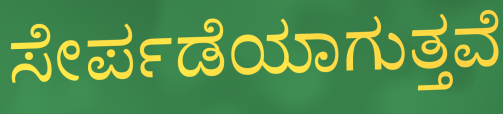
ಸೇರ್ಪಡೆಯಾಗುತ್ತವೆ